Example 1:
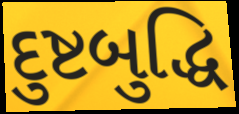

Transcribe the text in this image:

દુષ્ટબુદ્ધિ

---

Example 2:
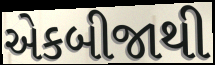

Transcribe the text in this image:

એકબીજાથી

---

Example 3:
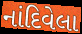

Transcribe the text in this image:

નાંદિવેલા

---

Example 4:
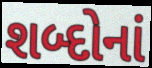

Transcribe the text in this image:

શબ્દોનાં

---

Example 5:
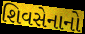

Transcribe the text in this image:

શિવસેનાનો